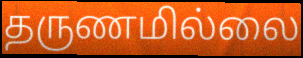
தருணமில்லை